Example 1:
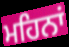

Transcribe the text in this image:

ਮਹਿਨਾਂ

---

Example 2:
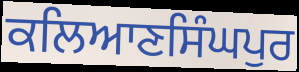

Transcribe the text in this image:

ਕਲਿਆਣਸਿੰਘਪੁਰ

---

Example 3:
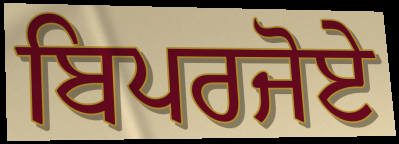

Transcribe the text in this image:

ਬਿਪਰਜੋਏ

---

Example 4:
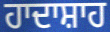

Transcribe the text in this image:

ਹਾਦਾਸ਼ਾਹ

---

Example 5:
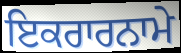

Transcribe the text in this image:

ਇਕਰਾਰਨਾਮੇ